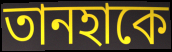
তানহাকে